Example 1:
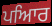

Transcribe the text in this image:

ਪਆਿਰ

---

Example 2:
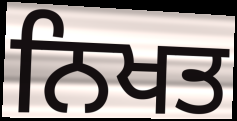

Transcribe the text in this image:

ਨਿਖਤ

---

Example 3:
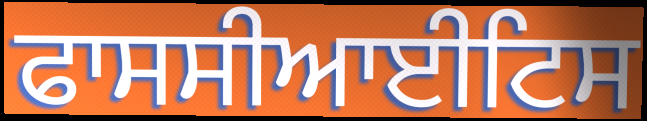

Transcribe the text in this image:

ਫਾਸਸੀਆਈਟਿਸ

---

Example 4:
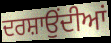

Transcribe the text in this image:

ਦਰਸ਼ਾਉਂਦੀਆਂ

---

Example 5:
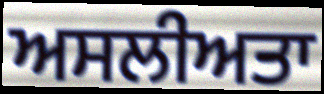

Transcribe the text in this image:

ਅਸਲੀਅਤਾ